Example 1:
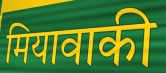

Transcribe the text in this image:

मियावाकी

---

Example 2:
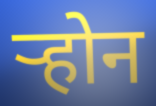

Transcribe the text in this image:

र्‍होन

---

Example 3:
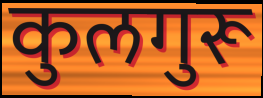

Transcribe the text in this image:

कुलगुरू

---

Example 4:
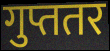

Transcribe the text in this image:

गुप्ततर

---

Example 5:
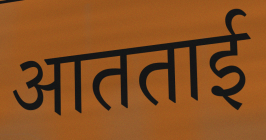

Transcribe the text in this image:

आतताई